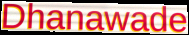
Dhanawade